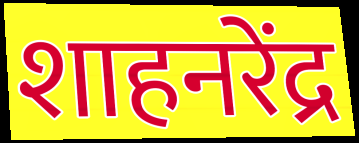
शाहनरेंद्र